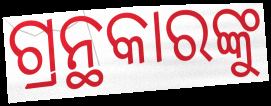
ଗ୍ରନ୍ଥକାରଙ୍କୁ